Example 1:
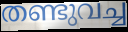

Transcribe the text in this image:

തണ്ടുവച്ച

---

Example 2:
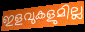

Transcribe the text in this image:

ഇളവുകളുമില്ല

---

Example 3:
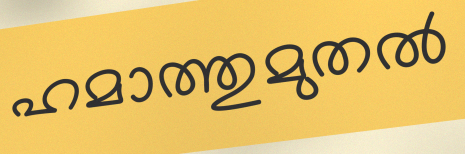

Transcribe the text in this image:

ഹമാത്തുമുതൽ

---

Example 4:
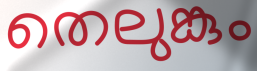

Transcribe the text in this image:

തെലുങ്കും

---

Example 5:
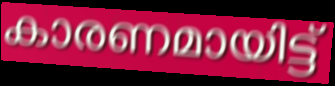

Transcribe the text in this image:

കാരണമായിട്ട്